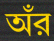
অঁর